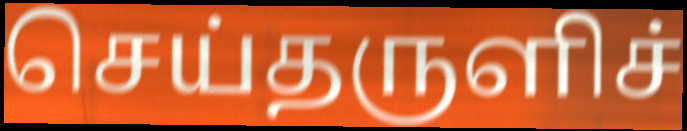
செய்தருளிச்